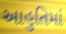
આહુતિમાં